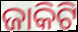
ଜାକିଟି